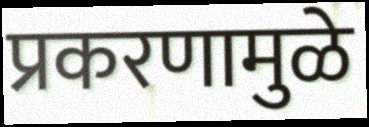
प्रकरणामुळे